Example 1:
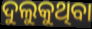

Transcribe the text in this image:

ଦୁଲୁକୁଥିବା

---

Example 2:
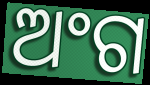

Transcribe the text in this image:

ଅଂଗ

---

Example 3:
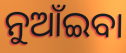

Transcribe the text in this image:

ନୁଆଁଇବା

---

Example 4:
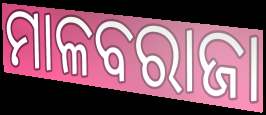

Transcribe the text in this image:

ମାଳବରାଜା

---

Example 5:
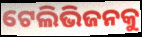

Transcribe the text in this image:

ଟେଲିଭିଜନକୁ